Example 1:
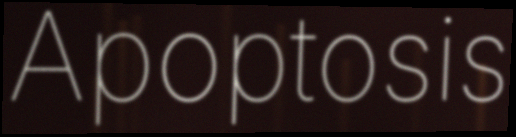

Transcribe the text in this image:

Apoptosis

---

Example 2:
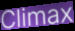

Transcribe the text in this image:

Climax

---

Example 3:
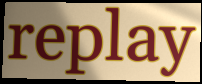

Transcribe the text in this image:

replay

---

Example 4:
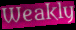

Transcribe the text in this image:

Weakly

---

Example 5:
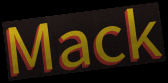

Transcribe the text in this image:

Mack